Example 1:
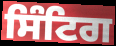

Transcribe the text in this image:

ਸਿੰਟਿਗ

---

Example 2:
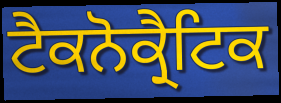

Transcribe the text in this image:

ਟੈਕਨੋਕ੍ਰੈਟਿਕ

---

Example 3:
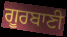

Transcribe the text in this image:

ਗੂਰਬਾਣੀ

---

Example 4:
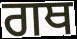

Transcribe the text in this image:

ਗਥ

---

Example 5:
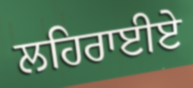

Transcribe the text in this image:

ਲਹਿਰਾਈਏ